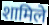
शामिले